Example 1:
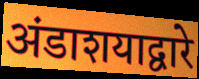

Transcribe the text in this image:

अंडाशयाद्वारे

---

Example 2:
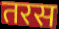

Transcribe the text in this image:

तरस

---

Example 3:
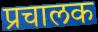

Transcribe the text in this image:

प्रचालक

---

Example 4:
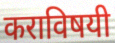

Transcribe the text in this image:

कराविषयी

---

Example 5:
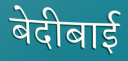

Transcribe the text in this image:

बेदीबाई